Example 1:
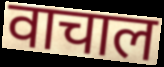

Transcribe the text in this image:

वाचाल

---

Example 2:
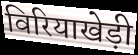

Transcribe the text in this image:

विरियाखेड़ी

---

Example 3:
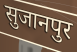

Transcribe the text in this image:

सुजानपुर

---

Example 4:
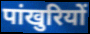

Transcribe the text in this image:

पांखुरियों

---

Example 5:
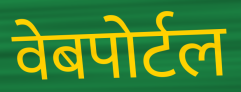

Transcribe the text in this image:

वेबपोर्टल